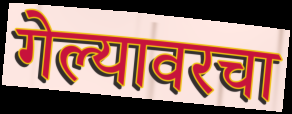
गेल्यावरचा